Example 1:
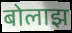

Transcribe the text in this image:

बोलाझ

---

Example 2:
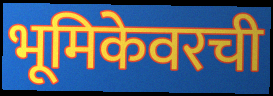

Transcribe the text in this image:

भूमिकेवरची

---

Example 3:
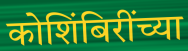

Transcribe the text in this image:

कोशिंबिरींच्या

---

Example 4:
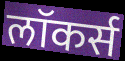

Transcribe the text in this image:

लॉकर्स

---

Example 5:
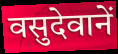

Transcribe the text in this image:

वसुदेवानें